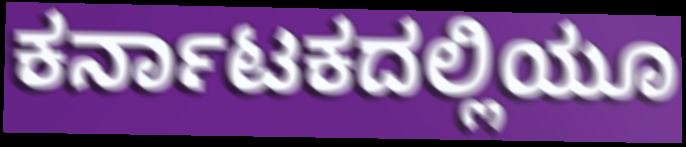
ಕರ್ನಾಟಕದಲ್ಲಿಯೂ